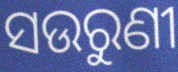
ସଉରୁଣୀ